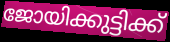
ജോയിക്കുട്ടിക്ക്